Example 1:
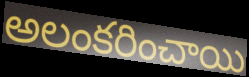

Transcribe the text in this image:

అలంకరించాయి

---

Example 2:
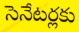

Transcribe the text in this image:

సెనేటర్లకు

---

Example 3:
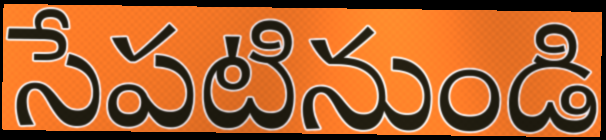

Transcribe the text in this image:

సేపటినుండి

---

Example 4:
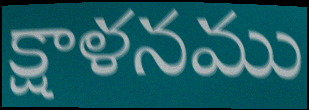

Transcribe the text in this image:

క్షాళనము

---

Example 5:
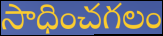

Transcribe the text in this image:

సాధించగలం